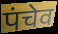
पंचेव